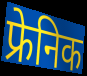
फ्रेनिक